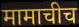
मामाचीच